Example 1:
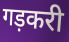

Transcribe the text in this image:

गड़करी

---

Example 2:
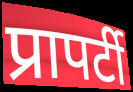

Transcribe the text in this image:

प्रापर्टी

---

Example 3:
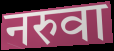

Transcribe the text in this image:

नरुवा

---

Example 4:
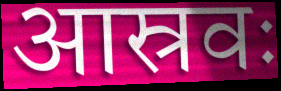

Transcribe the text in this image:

आस्रवः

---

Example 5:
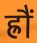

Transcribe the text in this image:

ह्रौं